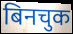
बिनचुक